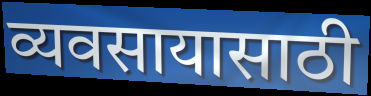
व्यवसायासाठी